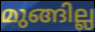
മുങ്ങില്ല